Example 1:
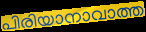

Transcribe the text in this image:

പിരിയാനാവാത്ത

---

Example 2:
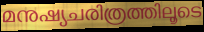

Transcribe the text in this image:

മനുഷ്യചരിത്രത്തിലൂടെ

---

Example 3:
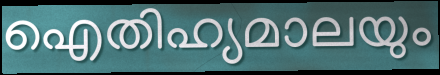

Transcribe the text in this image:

ഐതിഹ്യമാലയും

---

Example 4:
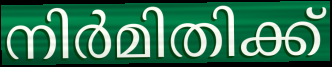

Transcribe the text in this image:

നിർമിതിക്ക്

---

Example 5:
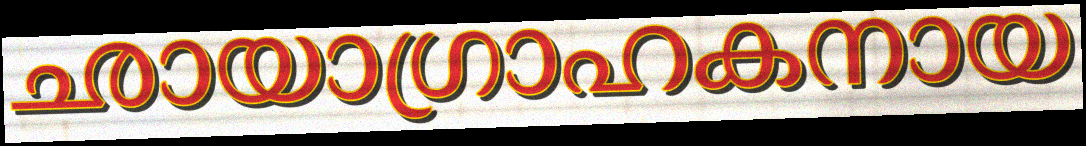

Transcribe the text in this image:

ഛായാഗ്രാഹകനായ